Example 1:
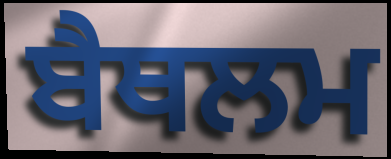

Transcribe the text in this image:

ਬੈਥਲਮ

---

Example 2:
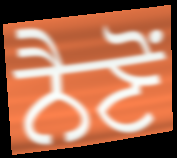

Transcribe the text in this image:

ਨੈਣੋਂ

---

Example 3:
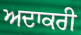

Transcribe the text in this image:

ਅਦਾਕਰੀ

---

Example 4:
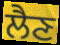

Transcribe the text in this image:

ਲੈਣ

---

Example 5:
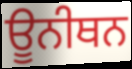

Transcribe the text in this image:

ਊਨੀਥਨ